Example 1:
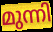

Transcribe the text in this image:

മുന്നി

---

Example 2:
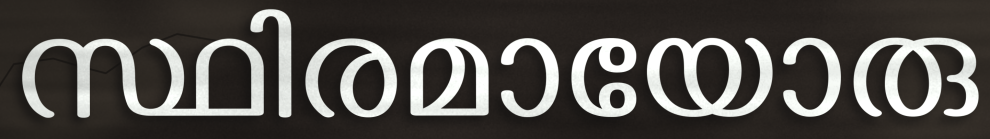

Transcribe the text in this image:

സ്ഥിരമായോരു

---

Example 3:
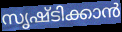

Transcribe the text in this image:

സൃഷ്ടിക്കാൻ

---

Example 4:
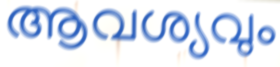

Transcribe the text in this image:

ആവശ്യവും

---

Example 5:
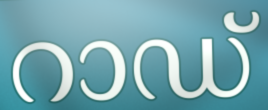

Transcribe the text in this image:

റാഡ്